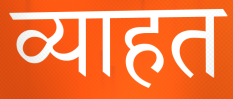
व्याहत